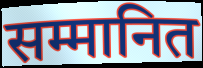
सम्मानित